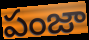
పంజా